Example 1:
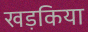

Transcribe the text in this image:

खड़किया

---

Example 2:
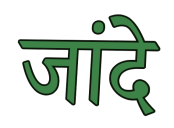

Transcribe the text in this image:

जांदे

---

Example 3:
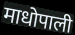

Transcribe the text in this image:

माधोपाली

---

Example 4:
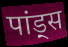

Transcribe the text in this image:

पांड्स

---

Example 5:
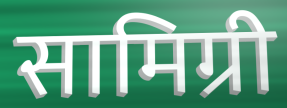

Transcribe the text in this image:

सामिग्री